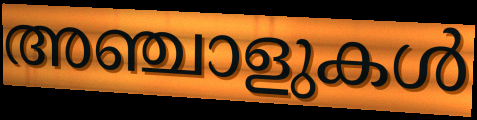
അഞ്ചാളുകൾ